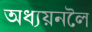
অধ্যয়নলৈ